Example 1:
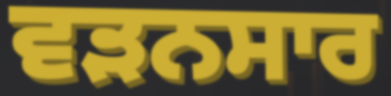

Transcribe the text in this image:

ਵੜਨਸਾਰ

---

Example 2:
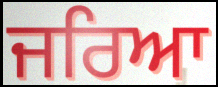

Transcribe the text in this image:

ਜਰਿਆ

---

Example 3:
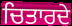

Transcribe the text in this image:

ਚਿਤਾਰਦੇ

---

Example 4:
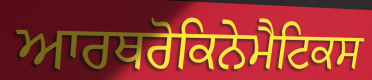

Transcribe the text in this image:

ਆਰਥਰੋਕਿਨੇਮੈਟਿਕਸ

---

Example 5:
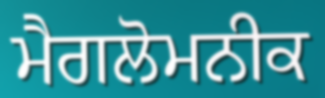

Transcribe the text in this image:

ਮੈਗਲੋਮਨੀਕ